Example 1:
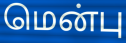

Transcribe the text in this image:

மென்பு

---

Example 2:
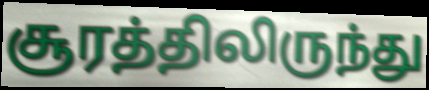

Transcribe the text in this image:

சூரத்திலிருந்து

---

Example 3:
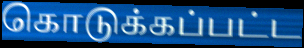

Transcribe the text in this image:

கொடுக்கப்பட்ட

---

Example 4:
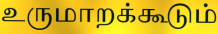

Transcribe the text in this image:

உருமாறக்கூடும்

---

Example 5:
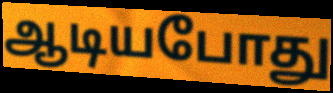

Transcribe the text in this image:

ஆடியபோது